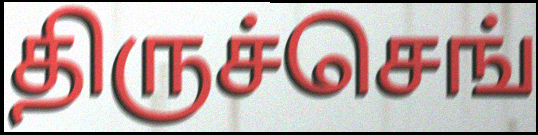
திருச்செங்